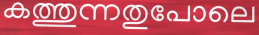
കത്തുന്നതുപോലെ